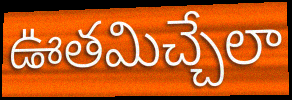
ఊతమిచ్చేలా